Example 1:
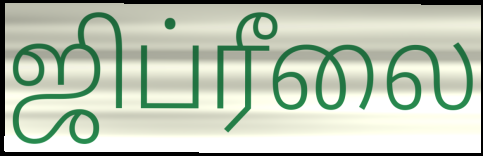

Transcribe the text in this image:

ஜிப்ரீலை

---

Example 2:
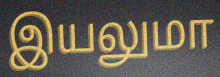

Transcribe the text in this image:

இயலுமா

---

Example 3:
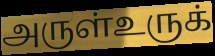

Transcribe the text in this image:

அருள்உருக்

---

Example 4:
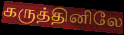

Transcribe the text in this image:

கருத்தினிலே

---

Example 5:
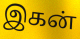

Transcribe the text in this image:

இகன்